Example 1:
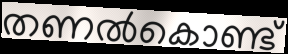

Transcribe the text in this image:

തണൽകൊണ്ട്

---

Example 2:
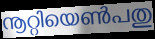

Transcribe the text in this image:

നൂറ്റിയെൺപതു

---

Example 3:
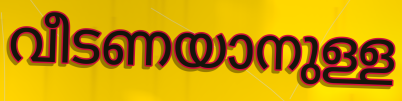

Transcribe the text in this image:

വീടണയാനുള്ള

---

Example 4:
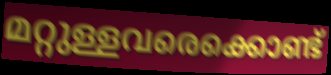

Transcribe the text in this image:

മറ്റുള്ളവരെക്കൊണ്ട്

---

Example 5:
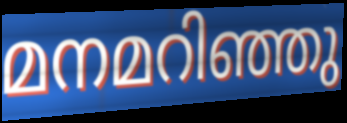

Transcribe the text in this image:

മനമറിഞ്ഞു